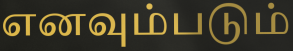
எனவும்படும்